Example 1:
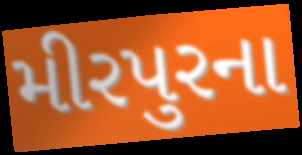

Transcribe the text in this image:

મીરપુરના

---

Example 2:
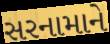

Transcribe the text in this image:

સરનામાને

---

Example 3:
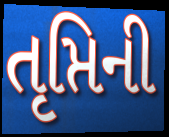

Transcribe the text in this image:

તૃપ્તિની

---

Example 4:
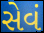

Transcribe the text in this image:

સેવં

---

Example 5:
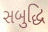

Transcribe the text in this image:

સબુદ્ધિ